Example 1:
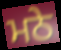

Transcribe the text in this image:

ਮਠੇ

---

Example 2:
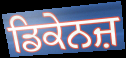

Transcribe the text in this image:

ਡਿਕੇਨਜ਼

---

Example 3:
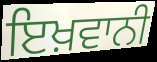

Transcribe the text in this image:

ਇਖ਼ਵਾਨੀ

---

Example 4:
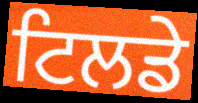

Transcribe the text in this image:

ਟਿਲਡੇ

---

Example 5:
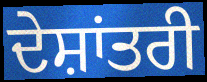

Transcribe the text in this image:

ਦੇਸ਼ਾਂਤਰੀ